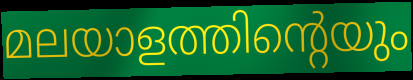
മലയാളത്തിന്റെയും